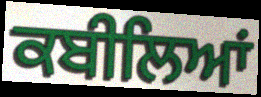
ਕਬੀਲਿਆਂ